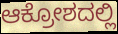
ಆಕ್ರೋಶದಲ್ಲಿ